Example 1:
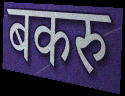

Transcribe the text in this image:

बकरु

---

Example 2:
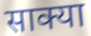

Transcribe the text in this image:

साक्या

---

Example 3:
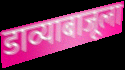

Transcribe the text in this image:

डाव्याबाजूला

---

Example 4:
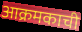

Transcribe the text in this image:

आक्रमकाची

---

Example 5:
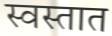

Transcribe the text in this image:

स्वस्तात